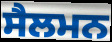
ਸੈਲਮਨ